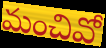
మంచివో